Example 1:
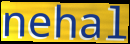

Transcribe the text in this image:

nehal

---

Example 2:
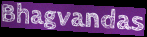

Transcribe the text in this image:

Bhagvandas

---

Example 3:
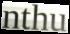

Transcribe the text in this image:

nthu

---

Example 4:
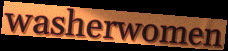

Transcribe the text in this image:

washerwomen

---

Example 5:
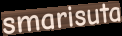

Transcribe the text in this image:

smarisuta